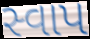
સ્વાપ